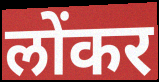
लोंकर